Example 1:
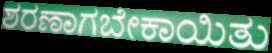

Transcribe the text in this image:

ಶರಣಾಗಬೇಕಾಯಿತು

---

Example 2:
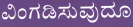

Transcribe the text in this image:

ವಿಂಗಡಿಸುವುದೂ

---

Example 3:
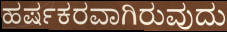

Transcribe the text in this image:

ಹರ್ಷಕರವಾಗಿರುವುದು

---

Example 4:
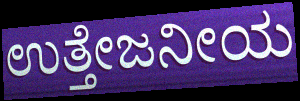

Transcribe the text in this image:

ಉತ್ತೇಜನೀಯ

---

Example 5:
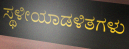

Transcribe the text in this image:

ಸ್ಥಳೀಯಾಡಳಿತಗಳು